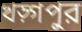
খড়্গপুর